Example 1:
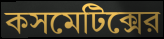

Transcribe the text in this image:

কসমেটিক্সের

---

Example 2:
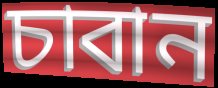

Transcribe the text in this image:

চাবান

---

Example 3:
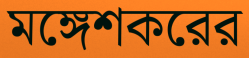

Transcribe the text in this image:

মঙ্গেশকরের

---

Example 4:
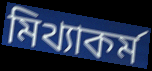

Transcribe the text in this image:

মিথ্যাকর্ম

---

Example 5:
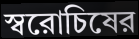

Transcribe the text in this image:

স্বরোচিষের